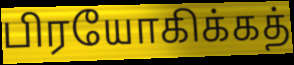
பிரயோகிக்கத்